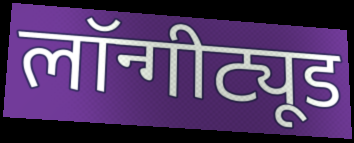
लॉन्गीट्यूड